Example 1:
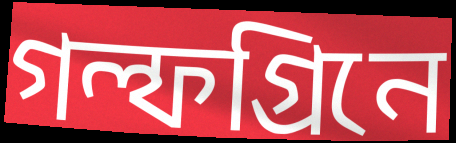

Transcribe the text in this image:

গল্ফগ্রিনে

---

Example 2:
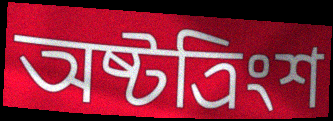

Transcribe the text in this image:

অষ্টত্রিংশ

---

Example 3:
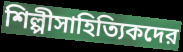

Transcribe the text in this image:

শিল্পীসাহিত্যিকদের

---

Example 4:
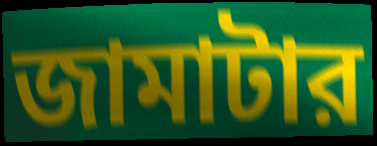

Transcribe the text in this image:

জামাটার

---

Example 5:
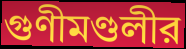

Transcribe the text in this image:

গুণীমণ্ডলীর